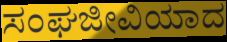
ಸಂಘಜೀವಿಯಾದ